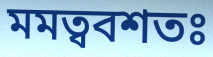
মমত্ববশতঃ